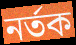
নৰ্তক